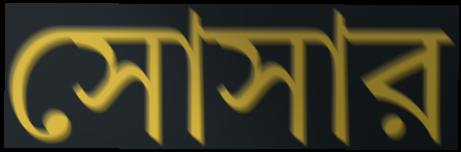
সোসার